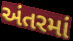
અંતરમાં